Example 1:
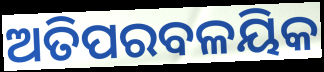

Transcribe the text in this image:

ଅତିପରବଳୟିକ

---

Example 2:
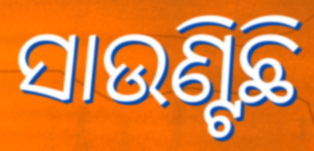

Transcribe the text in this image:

ସାଉଣ୍ଟିଛି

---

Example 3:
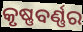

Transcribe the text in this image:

କୃଷ୍ଣବର୍ଣ୍ଣର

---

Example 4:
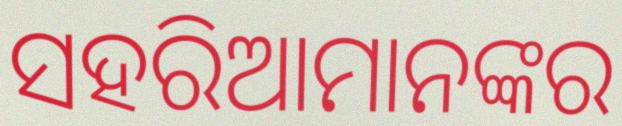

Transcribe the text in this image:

ସହରିଆମାନଙ୍କର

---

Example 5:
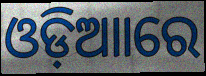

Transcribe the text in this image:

ଓଡ଼ିଆାରେ